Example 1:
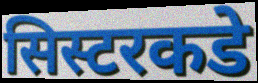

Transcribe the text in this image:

सिस्टरकडे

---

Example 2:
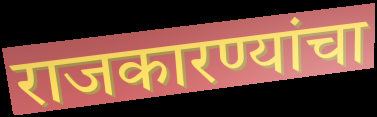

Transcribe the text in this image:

राजकारण्यांचा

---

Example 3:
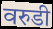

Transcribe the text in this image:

वरुडी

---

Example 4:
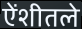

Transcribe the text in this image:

ऐंशीतले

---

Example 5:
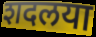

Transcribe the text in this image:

शदलया